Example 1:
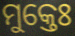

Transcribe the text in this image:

ମୁକ୍ତେଃ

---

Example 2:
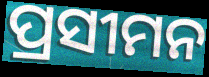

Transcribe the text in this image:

ପ୍ରସୀମନ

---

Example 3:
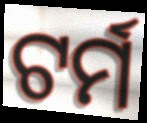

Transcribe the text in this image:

ଟର୍ମ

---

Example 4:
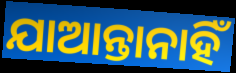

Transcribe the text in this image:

ଯାଆନ୍ତାନାହିଁ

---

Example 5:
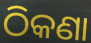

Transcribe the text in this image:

ଠିକଣା